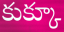
కుక్కూ